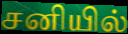
சனியில்